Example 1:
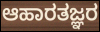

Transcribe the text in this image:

ಆಹಾರತಜ್ಞರ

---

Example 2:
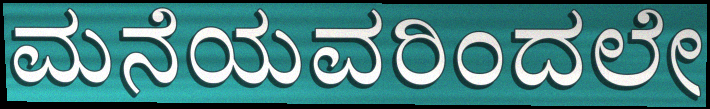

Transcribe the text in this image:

ಮನೆಯವರಿಂದಲೇ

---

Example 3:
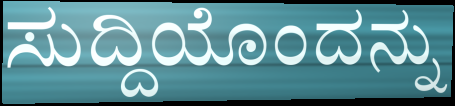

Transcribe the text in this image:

ಸುದ್ದಿಯೊಂದನ್ನು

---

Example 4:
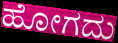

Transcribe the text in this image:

ಹೋಗದು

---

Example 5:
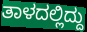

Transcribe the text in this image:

ತಾಳದಲ್ಲಿದ್ದು